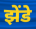
झेंडे